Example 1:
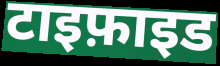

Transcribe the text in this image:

टाइफ़ाइड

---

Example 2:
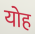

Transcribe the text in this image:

योह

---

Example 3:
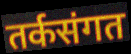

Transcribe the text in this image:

तर्कसंगत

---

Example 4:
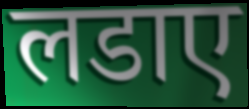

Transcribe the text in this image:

लडाए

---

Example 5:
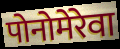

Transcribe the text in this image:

पोनोमेरेवा